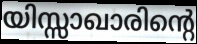
യിസ്സാഖാരിന്റെ